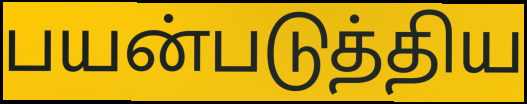
பயன்படுத்திய